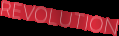
REVOLUTION